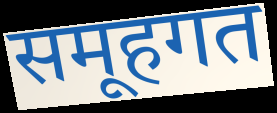
समूहगत